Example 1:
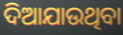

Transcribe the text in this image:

ଦିଆଯାଉଥିବା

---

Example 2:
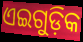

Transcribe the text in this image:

ଏଇଗୁଡ଼ିକ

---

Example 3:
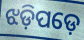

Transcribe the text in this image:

ଝଡ଼ିପଡ଼େ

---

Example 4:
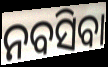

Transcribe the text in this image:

ନବସିବା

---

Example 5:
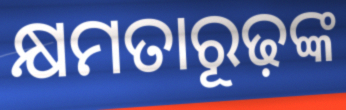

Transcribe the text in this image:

କ୍ଷମତାରୂଢ଼ଙ୍କ